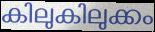
കിലുകിലുക്കം